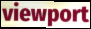
viewport